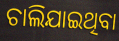
ଚାଲିଯାଇଥିବା